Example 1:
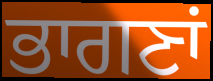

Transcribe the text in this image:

ਭਾਗਣਾਂ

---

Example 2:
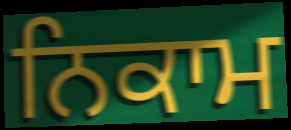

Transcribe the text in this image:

ਨਿਕਾਮ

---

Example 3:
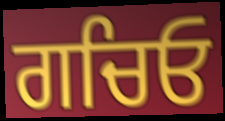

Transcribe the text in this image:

ਗਚਿਓ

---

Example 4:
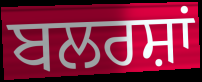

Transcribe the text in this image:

ਬਲਰਸ਼ਾਂ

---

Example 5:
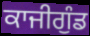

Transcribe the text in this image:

ਕਾਜੀਗੁੰਡ